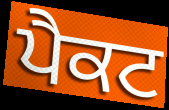
ਪੈਕਟ